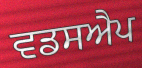
ਵਡਸਐਪ